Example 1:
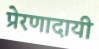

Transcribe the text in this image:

प्रेरणादायी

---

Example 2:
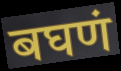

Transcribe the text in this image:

बघणं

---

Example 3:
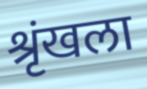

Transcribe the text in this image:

श्रृंखला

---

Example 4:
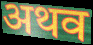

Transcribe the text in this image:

अथव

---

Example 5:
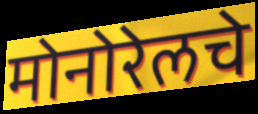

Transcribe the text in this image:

मोनोरेलचे